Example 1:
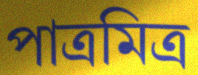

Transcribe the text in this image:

পাত্রমিত্র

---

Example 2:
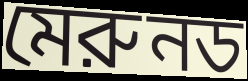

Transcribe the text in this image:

মেরুনড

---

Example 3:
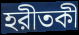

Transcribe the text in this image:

হরীতকী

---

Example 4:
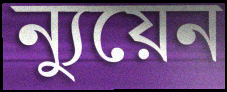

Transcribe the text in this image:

ন্যুয়েন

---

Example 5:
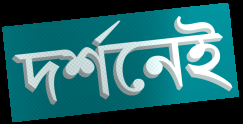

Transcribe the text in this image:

দর্শনেই